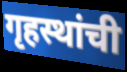
गृहस्थांची